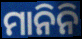
ମାନିନି